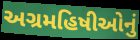
અગ્રમહિષીઓનું